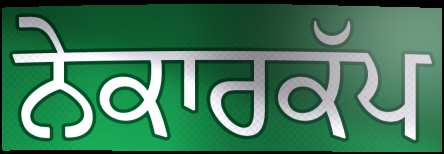
ਨੇਕਾਰਕੱਪ